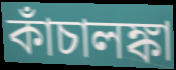
কাঁচালঙ্কা